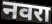
नवरा